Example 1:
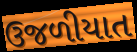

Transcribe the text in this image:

ઉજળીયાત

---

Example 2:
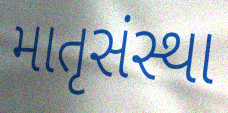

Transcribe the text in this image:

માતૃસંસ્થા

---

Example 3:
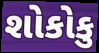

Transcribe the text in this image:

શોકોકુ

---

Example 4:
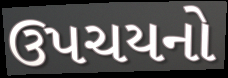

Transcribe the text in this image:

ઉપચયનો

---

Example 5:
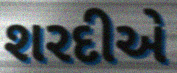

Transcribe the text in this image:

શરદીએ